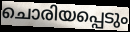
ചൊരിയപ്പെടും